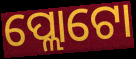
ପ୍ଲୋଟୋ